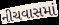
નીચવાસમાં